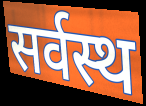
सर्वस्थ